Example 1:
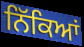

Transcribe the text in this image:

ਨਿੱਕਿਆਂ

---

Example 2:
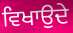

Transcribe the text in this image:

ਵਿਖਾਉਦੇ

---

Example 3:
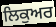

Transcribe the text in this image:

ਲਿਕੁਅਰ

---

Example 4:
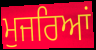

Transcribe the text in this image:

ਮੁਜਰਿਆਂ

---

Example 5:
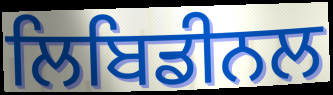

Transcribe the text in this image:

ਲਿਬਿਡੀਨਲ